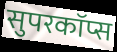
सुपरकॉप्स